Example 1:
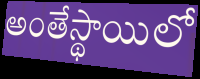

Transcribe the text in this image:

అంతేస్థాయిలో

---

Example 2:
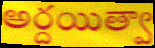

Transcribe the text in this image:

అర్దయిత్వా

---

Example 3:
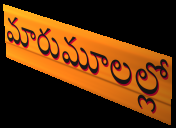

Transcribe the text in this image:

మారుమూలల్లో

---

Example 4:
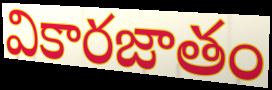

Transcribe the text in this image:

వికారజాతం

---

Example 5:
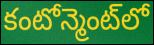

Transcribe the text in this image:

కంటోన్మెంట్‌లో